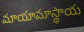
మాయామాస్థాయ